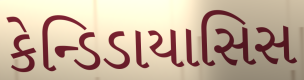
કેન્ડિડાયાસિસ